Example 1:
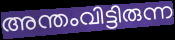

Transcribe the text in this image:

അന്തംവിട്ടിരുന്ന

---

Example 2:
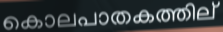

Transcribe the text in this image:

കൊലപാതകത്തില്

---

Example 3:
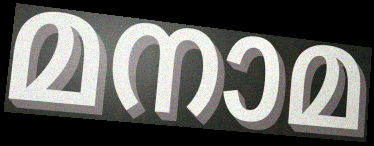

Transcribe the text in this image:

മനാമ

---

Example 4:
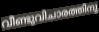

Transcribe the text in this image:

വീണ്ടുവിചാരത്തിനു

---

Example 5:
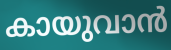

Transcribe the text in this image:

കായുവാൻ